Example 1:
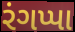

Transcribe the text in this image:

રંગપ્પા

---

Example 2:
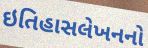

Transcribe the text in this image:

ઇતિહાસલેખનનો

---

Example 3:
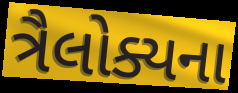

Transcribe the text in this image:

ત્રૈલોક્યના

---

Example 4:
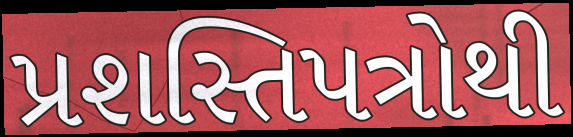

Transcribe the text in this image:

પ્રશસ્તિપત્રોથી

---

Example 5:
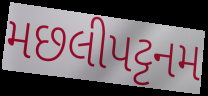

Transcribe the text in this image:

મછલીપટ્ટનમ